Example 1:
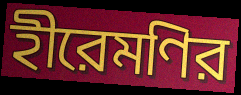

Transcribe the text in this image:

হীরেমণির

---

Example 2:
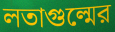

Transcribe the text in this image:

লতাগুল্মের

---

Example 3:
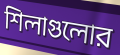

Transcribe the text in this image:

শিলাগুলোর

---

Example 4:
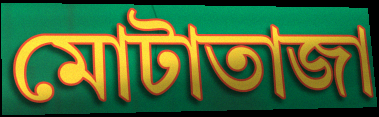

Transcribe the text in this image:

মোটাতাজা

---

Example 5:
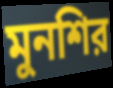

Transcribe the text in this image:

মুনশির